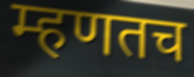
म्हणतच